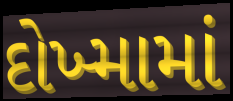
દોખ્મામાં